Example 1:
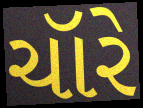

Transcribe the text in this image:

ચૉરે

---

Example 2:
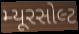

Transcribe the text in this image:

મ્યૂરસોલ્ટ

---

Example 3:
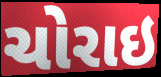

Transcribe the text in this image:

ચોરાઇ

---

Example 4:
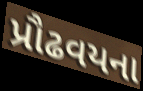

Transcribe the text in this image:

પ્રૌઢવયના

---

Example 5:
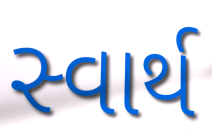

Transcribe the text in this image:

સ્વાર્થ